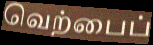
வெற்பைப்